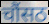
चौंसठ